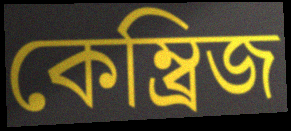
কেম্ব্রিজ